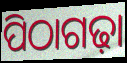
ପିଠାଗଢ଼ା